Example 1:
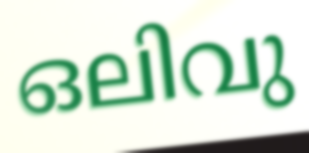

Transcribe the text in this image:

ഒലിവു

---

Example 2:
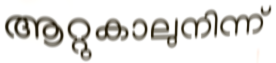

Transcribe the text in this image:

ആറ്റുകാലുനിന്ന്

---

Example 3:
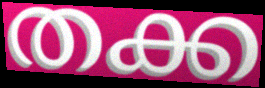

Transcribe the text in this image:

തക്ക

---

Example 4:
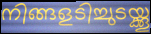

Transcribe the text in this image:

നിങ്ങളടിച്ചുടയ്ക്കൂ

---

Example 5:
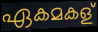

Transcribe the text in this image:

ഏകമകള്